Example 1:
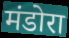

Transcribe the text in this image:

मंडोरा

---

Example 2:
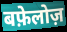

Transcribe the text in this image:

बफ़ेलोज़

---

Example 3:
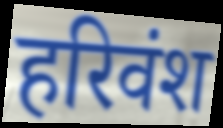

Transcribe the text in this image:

हरिवंश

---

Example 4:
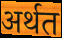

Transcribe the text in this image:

अर्थत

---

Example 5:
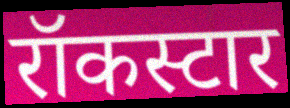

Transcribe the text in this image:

रॉकस्टार